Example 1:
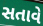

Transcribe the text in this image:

સતાવે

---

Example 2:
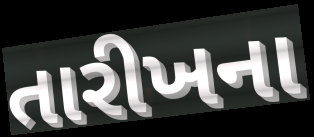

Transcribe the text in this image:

તારીખના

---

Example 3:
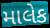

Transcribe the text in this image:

માલેક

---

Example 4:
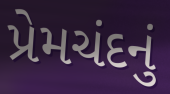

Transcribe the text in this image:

પ્રેમચંદનું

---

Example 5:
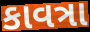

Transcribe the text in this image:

કાવત્રા